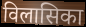
विलासिका